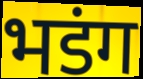
भडंग